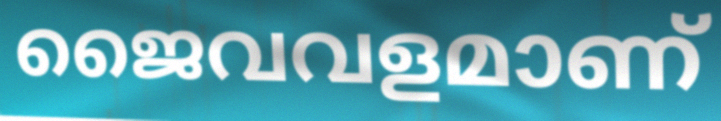
ജൈവവളമാണ്